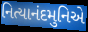
નિત્યાનંદમુનિએ